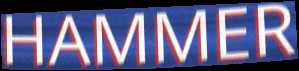
HAMMER